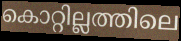
കൊറ്റില്ലത്തിലെ